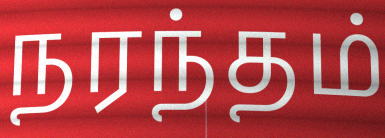
நரந்தம்